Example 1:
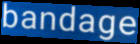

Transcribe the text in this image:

bandage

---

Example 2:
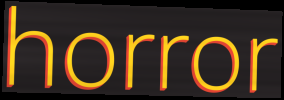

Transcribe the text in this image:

horror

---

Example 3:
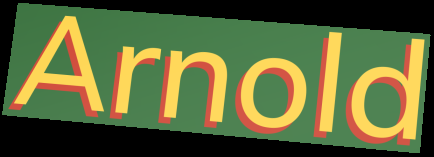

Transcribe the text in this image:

Arnold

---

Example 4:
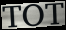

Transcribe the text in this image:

TOT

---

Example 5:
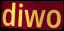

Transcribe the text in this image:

diwo